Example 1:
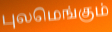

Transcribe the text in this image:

புலமெங்கும்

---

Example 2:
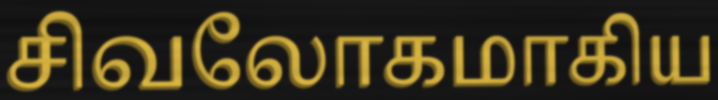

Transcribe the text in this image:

சிவலோகமாகிய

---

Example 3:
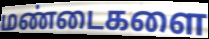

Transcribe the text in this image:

மண்டைகளை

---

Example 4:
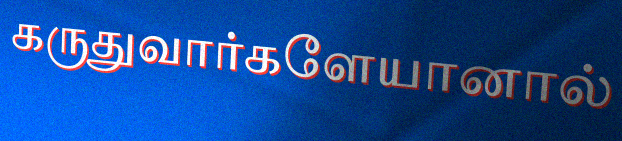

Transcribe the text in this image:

கருதுவார்களேயானால்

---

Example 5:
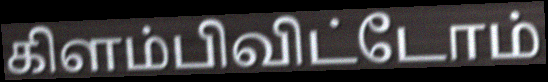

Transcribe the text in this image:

கிளம்பிவிட்டோம்